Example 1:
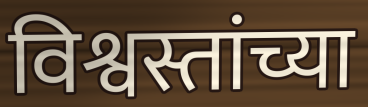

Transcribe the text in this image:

विश्वस्तांच्या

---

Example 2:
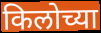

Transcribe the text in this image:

किलोच्या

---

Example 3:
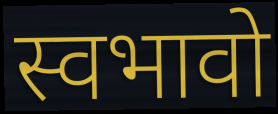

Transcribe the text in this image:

स्वभावो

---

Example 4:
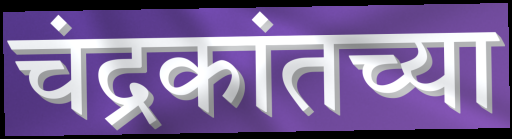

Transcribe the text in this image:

चंद्रकांतच्या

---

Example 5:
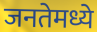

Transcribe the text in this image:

जनतेमध्ये